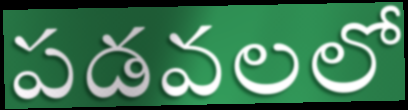
పడవలలో